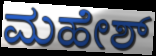
ಮಹೇಶ್